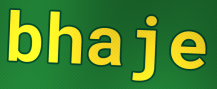
bhaje